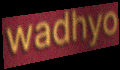
wadhyo